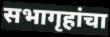
सभागृहांचा